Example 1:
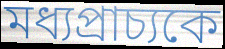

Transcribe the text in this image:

মধ্যপ্রাচ্যকে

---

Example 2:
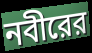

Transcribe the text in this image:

নবীরের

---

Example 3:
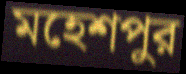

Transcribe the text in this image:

মহেশপুর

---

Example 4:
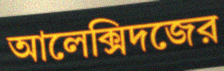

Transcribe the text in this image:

আলেক্সিদজের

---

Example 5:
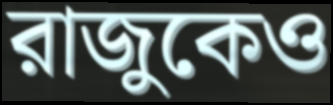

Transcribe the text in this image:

রাজুকেও